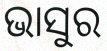
ଭାସୁର